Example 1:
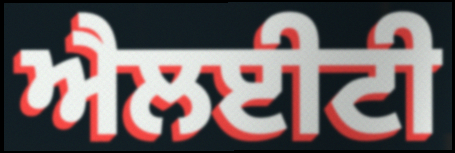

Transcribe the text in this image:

ਐਲਈਟੀ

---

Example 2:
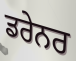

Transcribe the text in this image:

ਡਰੇਨਰ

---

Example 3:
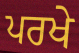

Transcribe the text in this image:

ਪਰਖੇ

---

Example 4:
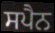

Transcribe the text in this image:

ਸਪੈਨ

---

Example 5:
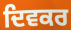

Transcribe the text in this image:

ਦਿਵਕਰ